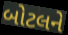
બોટલને